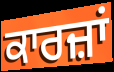
ਕਾਰਜ਼ਾਂ